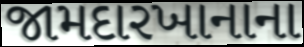
જામદારખાનાના